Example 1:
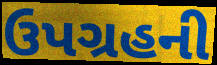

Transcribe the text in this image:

ઉપગ્રહની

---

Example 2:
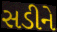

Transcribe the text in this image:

સડીને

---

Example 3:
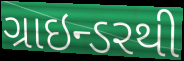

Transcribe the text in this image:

ગ્રાઇન્ડરથી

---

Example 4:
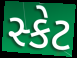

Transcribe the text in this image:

સ્કેટ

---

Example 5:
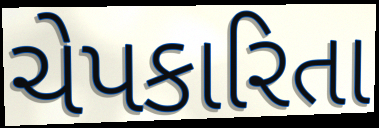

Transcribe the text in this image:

ચેપકારિતા